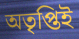
অতৃপ্তিই